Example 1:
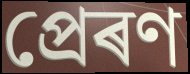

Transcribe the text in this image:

প্ৰেৰণ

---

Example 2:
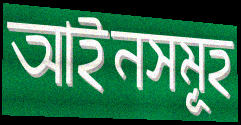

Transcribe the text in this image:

আইনসমূহ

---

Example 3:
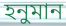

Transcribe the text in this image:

হনুমান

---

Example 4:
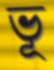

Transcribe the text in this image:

ভূ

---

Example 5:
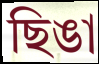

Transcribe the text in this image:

ছিঙা